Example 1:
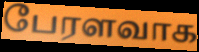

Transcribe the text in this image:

பேரளவாக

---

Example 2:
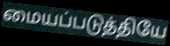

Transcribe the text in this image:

மையப்படுத்தியே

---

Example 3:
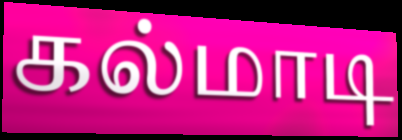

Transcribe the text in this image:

கல்மாடி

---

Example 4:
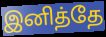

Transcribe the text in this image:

இனித்தே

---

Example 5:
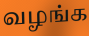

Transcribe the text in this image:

வழங்க